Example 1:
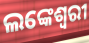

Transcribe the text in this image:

ଲଙ୍କେଶ୍ୱରୀ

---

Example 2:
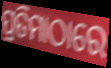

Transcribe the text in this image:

ପ୍ରତିମାଠାରେ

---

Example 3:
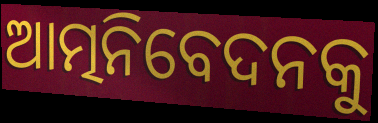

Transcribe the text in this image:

ଆତ୍ମନିବେଦନକୁ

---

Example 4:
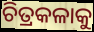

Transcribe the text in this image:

ଚିତ୍ରକଳାକୁ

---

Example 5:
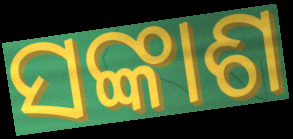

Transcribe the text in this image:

ସଙ୍କାଶ